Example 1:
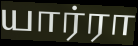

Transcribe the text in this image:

யார்ரா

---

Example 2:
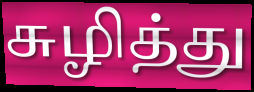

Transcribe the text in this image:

சுழித்து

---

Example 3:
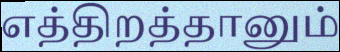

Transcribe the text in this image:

எத்திறத்தானும்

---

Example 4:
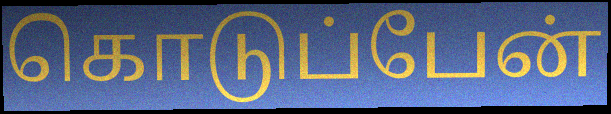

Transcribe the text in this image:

கொடுப்பேன்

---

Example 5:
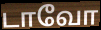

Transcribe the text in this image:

டாவோ